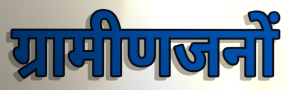
ग्रामीणजनों